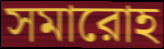
সমারোহ